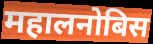
महालनोबिस